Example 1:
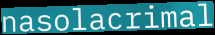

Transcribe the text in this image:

nasolacrimal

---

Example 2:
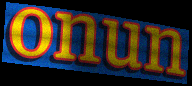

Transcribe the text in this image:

onun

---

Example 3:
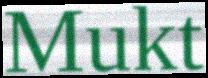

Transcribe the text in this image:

Mukt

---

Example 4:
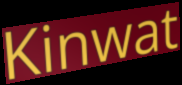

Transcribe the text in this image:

Kinwat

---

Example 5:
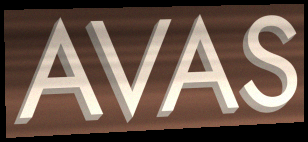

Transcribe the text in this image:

AVAS